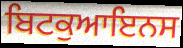
ਬਿਟਕੁਆਇਨਸ